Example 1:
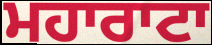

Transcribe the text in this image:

ਮਹਾਰਾਟਾ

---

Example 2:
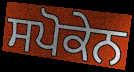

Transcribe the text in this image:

ਸਪੋਕੇਨ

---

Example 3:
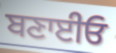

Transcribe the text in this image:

ਬਣਾਈਓ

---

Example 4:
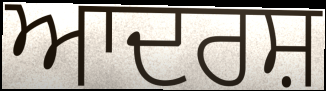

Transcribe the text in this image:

ਆਦਰਸ਼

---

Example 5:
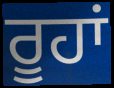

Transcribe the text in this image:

ਰੂਹਾਂ